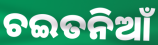
ଚଇତନିଆଁ